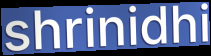
shrinidhi